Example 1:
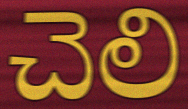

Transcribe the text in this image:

చెలి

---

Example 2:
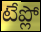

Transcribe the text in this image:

టేప్లో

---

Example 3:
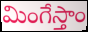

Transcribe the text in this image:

మింగేస్తాం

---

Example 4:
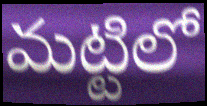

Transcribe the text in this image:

మట్టిలో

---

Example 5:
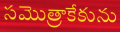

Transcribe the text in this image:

సమొత్రాకేకును